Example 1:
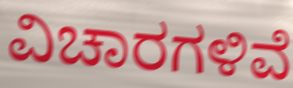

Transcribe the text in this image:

ವಿಚಾರಗಳಿವೆ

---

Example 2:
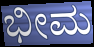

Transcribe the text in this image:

ಭೀಮ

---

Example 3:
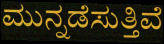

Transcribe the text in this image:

ಮುನ್ನಡೆಸುತ್ತಿವೆ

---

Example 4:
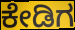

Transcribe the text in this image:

ಕೇಡಿಗ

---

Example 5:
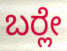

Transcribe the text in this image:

ಬರ್‍ಲೇ